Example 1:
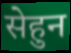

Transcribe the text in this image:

सेहुन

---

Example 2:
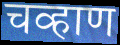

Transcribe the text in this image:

चव्हाण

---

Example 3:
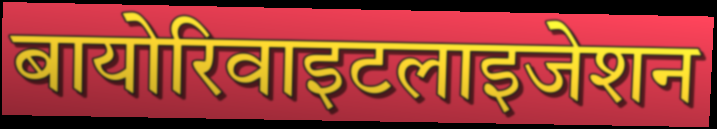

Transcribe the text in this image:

बायोरिवाइटलाइजेशन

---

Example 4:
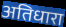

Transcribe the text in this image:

अतिधारा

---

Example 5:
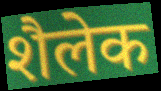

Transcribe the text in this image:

शैलेक